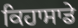
ਕਿਹਾਸਾਡੇ